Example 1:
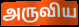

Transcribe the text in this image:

அருவிய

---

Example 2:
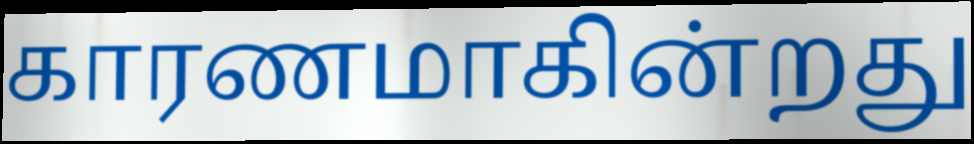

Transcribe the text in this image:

காரணமாகின்றது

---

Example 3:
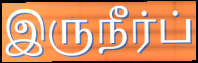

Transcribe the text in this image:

இருநீர்ப்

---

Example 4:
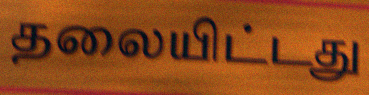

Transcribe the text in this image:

தலையிட்டது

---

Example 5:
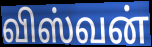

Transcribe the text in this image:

விஸ்வன்